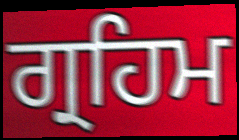
ਗ੍ਰਹਿਮ